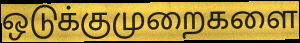
ஒடுக்குமுறைகளை